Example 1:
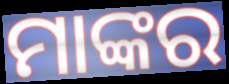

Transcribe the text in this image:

ମାଙ୍କର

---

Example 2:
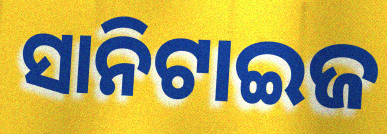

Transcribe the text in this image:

ସାନିଟାଇଜ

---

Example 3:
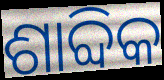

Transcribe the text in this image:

ଶାବ୍ଦିକ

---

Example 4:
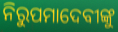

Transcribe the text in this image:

ନିରୁପମାଦେବୀଙ୍କୁ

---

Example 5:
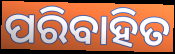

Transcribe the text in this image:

ପରିବାହିତ